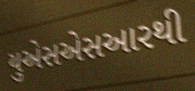
યુએસએસઆરથી